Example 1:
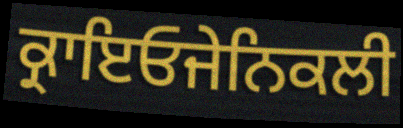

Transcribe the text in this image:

ਕ੍ਰਾਇਓਜੇਨਿਕਲੀ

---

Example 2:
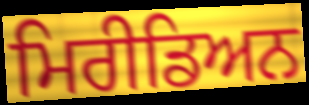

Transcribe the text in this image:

ਮਿਰੀਡਿਅਨ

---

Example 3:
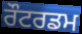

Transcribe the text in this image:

ਰੌਟਰਡਮ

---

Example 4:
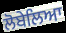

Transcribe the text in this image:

ਲੋਬੇਲਿਆ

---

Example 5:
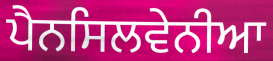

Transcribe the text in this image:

ਪੈਨਸਿਲਵੇਨੀਆ